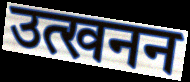
उत्‍खनन